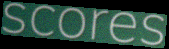
scores